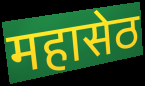
महासेठ